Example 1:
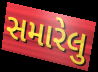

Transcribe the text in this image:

સમારેલુ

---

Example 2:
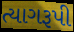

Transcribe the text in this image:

ત્યાગરૂપી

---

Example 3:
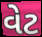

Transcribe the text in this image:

વેટ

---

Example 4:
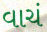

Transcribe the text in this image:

વાચં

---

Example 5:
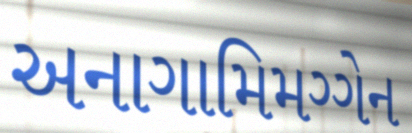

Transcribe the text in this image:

અનાગામિમગ્ગેન